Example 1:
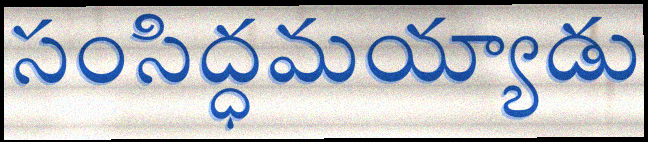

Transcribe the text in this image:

సంసిద్ధమయ్యాడు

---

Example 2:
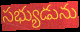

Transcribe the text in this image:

సభ్యుడును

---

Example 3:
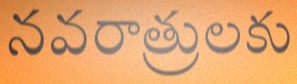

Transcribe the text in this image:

నవరాత్రులకు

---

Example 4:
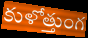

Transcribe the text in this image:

కుళోత్తుంగ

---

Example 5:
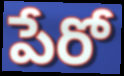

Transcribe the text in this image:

పేరో